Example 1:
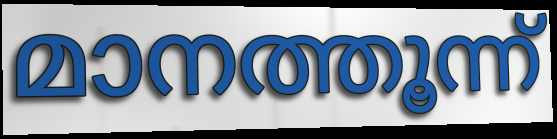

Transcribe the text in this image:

മാനത്തൂന്ന്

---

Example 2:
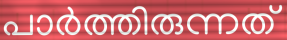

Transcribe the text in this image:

പാർത്തിരുന്നത്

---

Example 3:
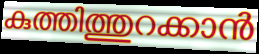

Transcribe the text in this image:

കുത്തിത്തുറക്കാൻ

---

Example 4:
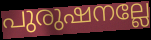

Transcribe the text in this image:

പുരുഷനല്ലേ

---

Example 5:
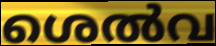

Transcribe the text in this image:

ശെൽവ